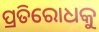
ପ୍ରତିରୋଧକୁ